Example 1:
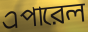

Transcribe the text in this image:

এপারেল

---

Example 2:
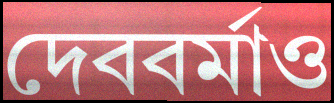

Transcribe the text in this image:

দেববর্মাও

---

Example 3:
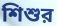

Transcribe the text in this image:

শিশুর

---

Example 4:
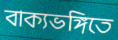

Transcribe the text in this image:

বাক্যভঙ্গিতে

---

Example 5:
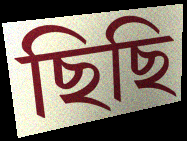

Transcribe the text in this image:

ছিছি